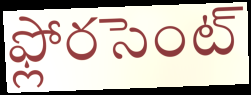
ఫ్లోరసెంట్